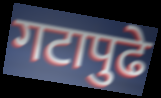
गटापुढे